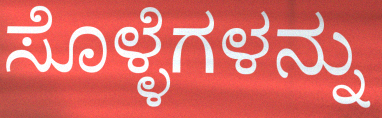
ಸೊಳ್ಳೆಗಳನ್ನು